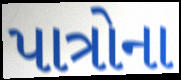
પાત્રોના